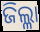
ଜିଲ୍ଳା